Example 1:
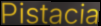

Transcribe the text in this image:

Pistacia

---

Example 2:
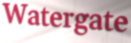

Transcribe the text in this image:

Watergate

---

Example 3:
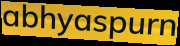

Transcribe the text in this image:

abhyaspurn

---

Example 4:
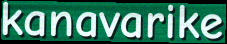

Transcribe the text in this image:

kanavarike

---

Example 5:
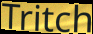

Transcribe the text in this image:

Tritch